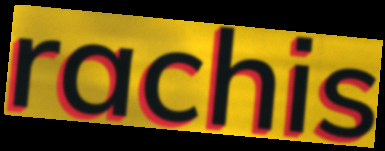
rachis